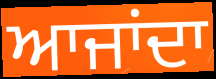
ਆਜਾਂਦਾ